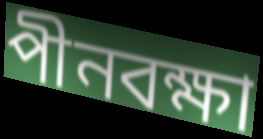
পীনবক্ষা